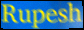
Rupesh